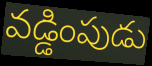
వడ్డింపుడు